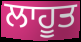
ਲਾਹੂਤ